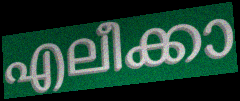
എലീക്കാ